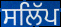
ਸਲਿੱਪ